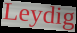
Leydig